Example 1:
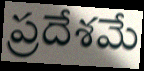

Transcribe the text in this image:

ప్రదేశమే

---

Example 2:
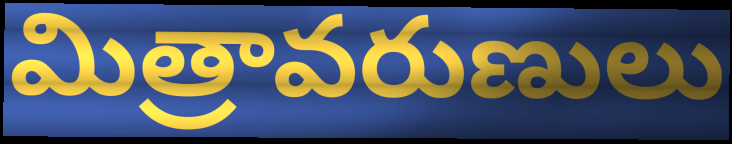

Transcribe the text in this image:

మిత్రావరుణులు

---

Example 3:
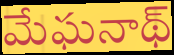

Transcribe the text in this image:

మేఘనాథ్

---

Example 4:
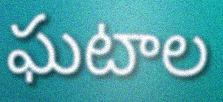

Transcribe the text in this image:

ఘటాల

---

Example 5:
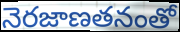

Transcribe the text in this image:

నెరజాణతనంతో